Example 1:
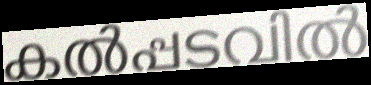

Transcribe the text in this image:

കൽപ്പടവിൽ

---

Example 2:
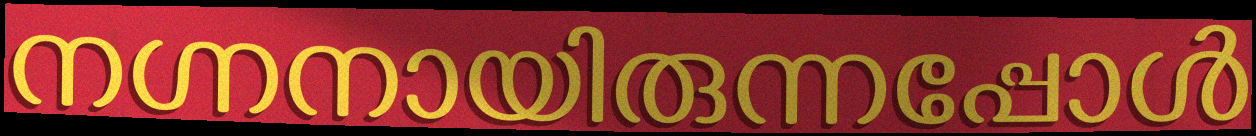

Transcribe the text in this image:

നഗ്നനായിരുന്നപ്പോൾ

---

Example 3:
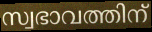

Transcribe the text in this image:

സ്വഭാവത്തിന്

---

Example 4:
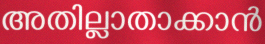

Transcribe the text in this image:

അതില്ലാതാക്കാൻ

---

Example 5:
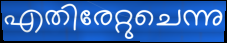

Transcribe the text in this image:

എതിരേറ്റുചെന്നു